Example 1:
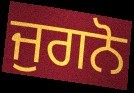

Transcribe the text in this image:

ਜੁਗਨੋ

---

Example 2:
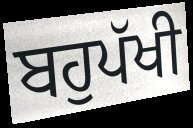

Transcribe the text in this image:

ਬਹੁਪੱਖੀ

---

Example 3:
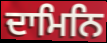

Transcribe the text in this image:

ਦਾਮਿਨਿ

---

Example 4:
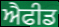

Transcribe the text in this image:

ਐਫੀਡ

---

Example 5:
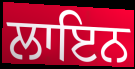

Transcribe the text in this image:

ਲਾਇਨ